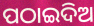
ପଠାଇଦିଅ